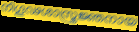
നിഗൂഢശാസ്ത്രജ്ഞനായ